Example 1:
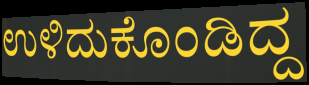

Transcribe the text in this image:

ಉಳಿದುಕೊಂಡಿದ್ದ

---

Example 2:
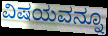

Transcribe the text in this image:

ವಿಷಯವನ್ನೂ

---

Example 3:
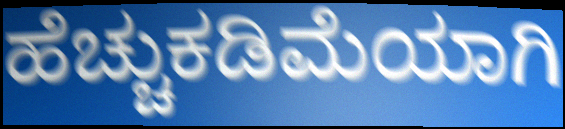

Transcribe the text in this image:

ಹೆಚ್ಚುಕಡಿಮೆಯಾಗಿ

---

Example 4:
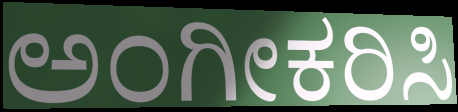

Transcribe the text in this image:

ಅಂಗೀಕರಿಸಿ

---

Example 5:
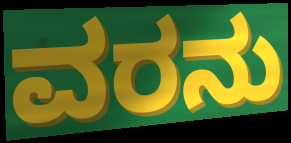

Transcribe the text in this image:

ವರನು